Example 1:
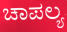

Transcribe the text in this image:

ಚಾಪಲ್ಯ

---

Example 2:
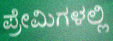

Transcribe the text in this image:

ಪ್ರೇಮಿಗಳಲ್ಲಿ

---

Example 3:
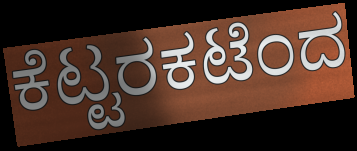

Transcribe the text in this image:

ಕೆಟ್ಟರಕಟೆಂದ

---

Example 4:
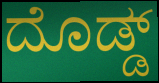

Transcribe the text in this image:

ದೊಡ್ಡ್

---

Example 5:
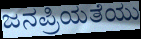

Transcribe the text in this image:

ಜನಪ್ರಿಯತೆಯು